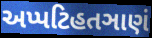
અપ્પટિહતઞાણં